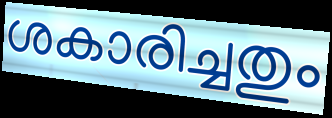
ശകാരിച്ചതും